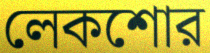
লেকশোর